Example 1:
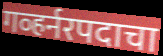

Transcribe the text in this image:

गव्हर्नरपदाचा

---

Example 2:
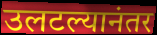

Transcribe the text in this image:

उलटल्यानंतर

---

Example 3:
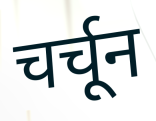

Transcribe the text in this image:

चर्चून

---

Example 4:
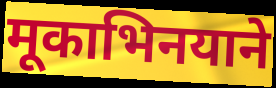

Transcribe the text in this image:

मूकाभिनयाने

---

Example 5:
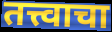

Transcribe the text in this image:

तत्त्वाचा